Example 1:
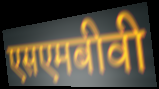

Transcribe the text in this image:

एसएमबीवी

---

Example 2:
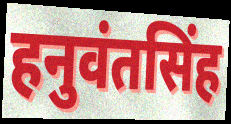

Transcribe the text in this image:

हनुवंतसिंह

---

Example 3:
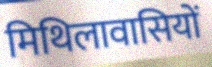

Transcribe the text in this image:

मिथिलावासियों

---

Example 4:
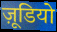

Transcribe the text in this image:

ज़ूडियो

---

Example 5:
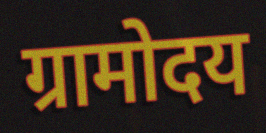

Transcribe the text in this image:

ग्रामोदय